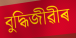
বুদ্ধিজীৱীৰ